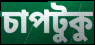
চাপটুকু